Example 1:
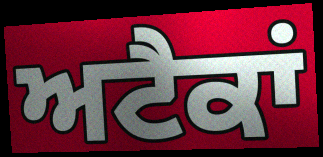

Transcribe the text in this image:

ਅਟੈਕਾਂ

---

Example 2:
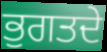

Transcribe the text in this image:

ਭੁਗਤਦੇ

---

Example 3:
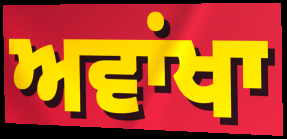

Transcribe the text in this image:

ਅਵਾਂਖਾ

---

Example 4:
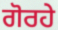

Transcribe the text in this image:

ਗੋਰਹੇ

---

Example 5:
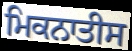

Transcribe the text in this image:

ਮਿਕਨਾਤੀਸ